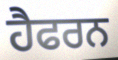
ਹੈਫਰਨ